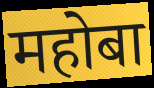
महोबा